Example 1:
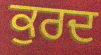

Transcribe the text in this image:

ਕੁਰਦ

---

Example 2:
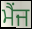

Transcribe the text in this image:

ਮੈਂਜ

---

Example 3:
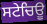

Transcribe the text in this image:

ਸਟੇਚਿਊ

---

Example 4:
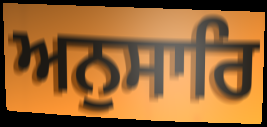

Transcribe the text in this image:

ਅਨੁਸਾਰਿ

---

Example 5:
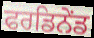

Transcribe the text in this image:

ਫਰਡਿਨੇਂਡ